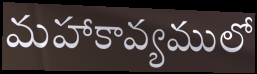
మహాకావ్యములో